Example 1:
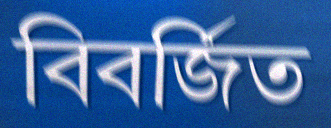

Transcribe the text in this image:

বিবর্জিত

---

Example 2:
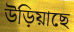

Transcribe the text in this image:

উড়িয়াছে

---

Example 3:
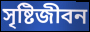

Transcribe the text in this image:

সৃষ্টিজীবন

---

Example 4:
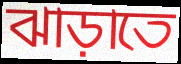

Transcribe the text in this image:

ঝাড়াতে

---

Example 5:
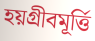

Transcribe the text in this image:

হয়গ্রীবমূর্ত্তি